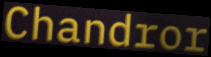
Chandror